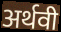
अर्थवी